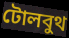
টোলবুথ